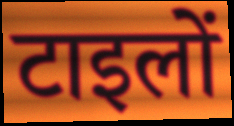
टाइलों